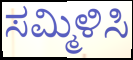
ಸಮ್ಮಿಳಿಸಿ